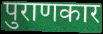
पुराणकार